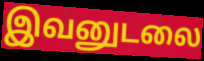
இவனுடலை